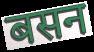
बसन